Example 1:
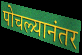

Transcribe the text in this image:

पोचल्यानंतर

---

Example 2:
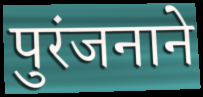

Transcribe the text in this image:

पुरंजनाने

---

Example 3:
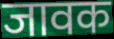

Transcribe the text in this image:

जावक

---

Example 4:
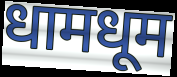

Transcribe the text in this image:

धामधूम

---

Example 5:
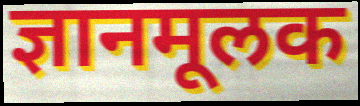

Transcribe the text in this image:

ज्ञानमूलक